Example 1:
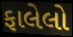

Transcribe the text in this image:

ફાલેલો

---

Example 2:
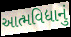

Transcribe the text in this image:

આત્મવિદ્યાનું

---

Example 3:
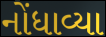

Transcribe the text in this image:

નોંધાવ્યા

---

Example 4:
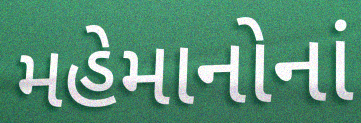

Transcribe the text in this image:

મહેમાનોનાં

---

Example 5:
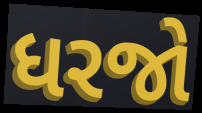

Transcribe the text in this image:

ધરજો